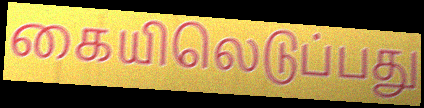
கையிலெடுப்பது